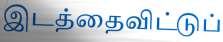
இடத்தைவிட்டுப்